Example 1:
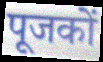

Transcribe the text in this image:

पूजकों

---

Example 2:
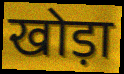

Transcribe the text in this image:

खोड़ा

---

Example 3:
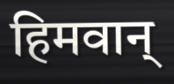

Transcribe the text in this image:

हिमवान्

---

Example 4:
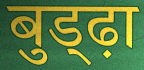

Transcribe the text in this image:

बुड्ढ़ा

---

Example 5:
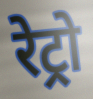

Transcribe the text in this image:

रेट्रो